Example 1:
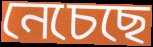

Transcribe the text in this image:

নেচেছে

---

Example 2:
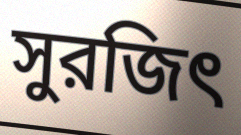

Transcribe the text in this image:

সুরজিৎ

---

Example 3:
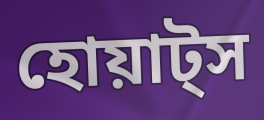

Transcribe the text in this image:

হোয়াট্স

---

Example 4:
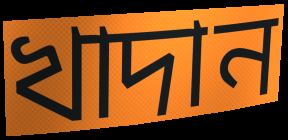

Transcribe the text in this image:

খাদান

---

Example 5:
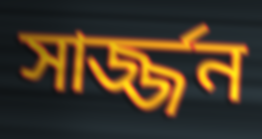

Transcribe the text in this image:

সার্জ্জন